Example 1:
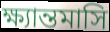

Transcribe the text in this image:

ক্ষ্যান্তমাসি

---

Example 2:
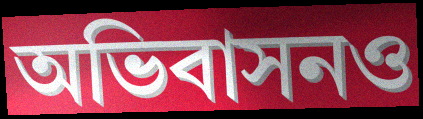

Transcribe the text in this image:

অভিবাসনও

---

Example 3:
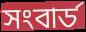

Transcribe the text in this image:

সংবার্ড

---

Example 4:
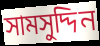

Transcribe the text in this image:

সামসুদ্দিন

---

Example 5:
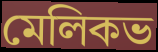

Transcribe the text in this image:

মেলিকভ